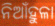
ନିଆଁହୁଳା